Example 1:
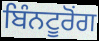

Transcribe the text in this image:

ਬਿੰਨਟੂਰੋਂਗ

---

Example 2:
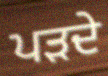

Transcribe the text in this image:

ਪੜਦੇ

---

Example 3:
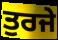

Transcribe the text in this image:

ਤੁਰਜੇ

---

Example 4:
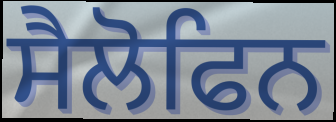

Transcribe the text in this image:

ਸੈਲੋਫਿਨ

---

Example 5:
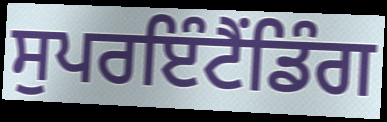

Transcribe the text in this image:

ਸੁਪਰਇੰਟੈਂਡਿੰਗ